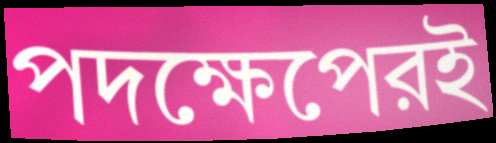
পদক্ষেপেরই